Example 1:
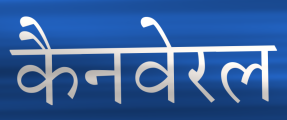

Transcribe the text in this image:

कैनवेरल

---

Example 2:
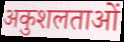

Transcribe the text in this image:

अकुशलताओं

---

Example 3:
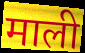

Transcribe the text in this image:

माली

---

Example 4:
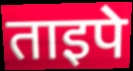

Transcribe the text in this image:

ताइपे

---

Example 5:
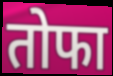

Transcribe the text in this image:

तोफा